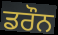
ਡਰੌਨ